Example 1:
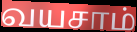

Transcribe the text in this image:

வயசாம்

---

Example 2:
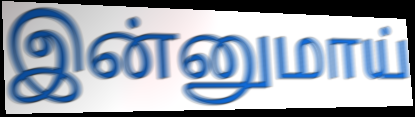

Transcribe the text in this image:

இன்னுமாய்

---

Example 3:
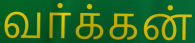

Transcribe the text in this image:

வர்க்கன்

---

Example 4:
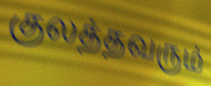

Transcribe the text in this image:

குலத்தவரும்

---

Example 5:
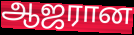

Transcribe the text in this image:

ஆஜரான